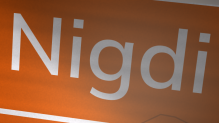
Nigdi